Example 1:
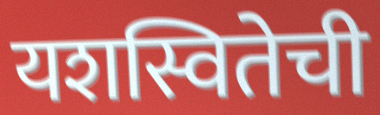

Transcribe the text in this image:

यशस्वितेची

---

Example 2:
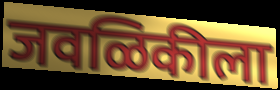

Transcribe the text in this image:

जवळिकीला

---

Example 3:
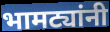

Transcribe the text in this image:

भामट्यांनी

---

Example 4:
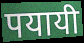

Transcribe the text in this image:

पयायी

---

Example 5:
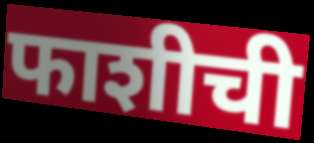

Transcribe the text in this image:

फाशीची